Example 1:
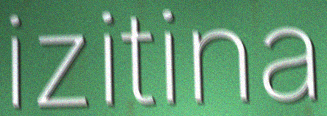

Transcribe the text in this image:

izitina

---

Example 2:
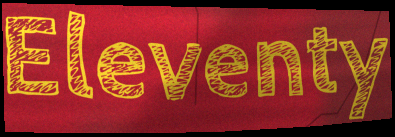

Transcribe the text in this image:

Eleventy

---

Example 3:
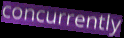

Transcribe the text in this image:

concurrently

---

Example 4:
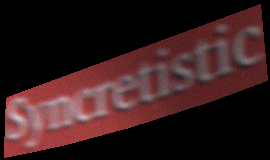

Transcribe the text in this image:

Syncretistic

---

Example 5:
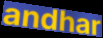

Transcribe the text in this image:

andhar